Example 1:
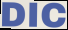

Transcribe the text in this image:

DIC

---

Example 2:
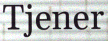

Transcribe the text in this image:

Tjener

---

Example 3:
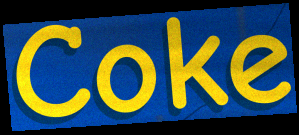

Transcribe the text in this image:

Coke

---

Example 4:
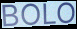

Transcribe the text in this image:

BOLO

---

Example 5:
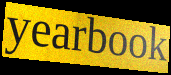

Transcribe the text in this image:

yearbook